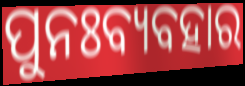
ପୁନଃବ୍ୟବହାର